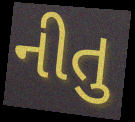
નીતુ